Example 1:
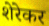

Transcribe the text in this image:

शेरेकर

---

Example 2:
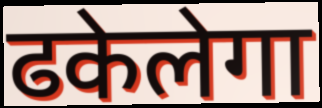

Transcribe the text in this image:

ढकेलेगा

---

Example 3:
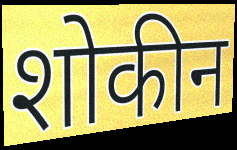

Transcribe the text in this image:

शोकीन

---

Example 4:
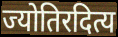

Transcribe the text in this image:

ज्योतिरदित्य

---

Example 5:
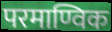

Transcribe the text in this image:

परमाण्विक